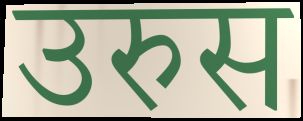
उरुस